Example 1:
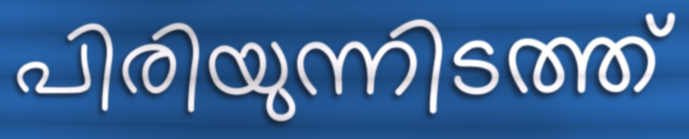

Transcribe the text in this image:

പിരിയുന്നിടത്ത്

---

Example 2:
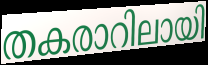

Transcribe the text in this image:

തകരാറിലായി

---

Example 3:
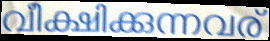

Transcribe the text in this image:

വീക്ഷിക്കുന്നവര്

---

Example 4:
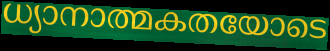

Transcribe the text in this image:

ധ്യാനാത്മകതയോടെ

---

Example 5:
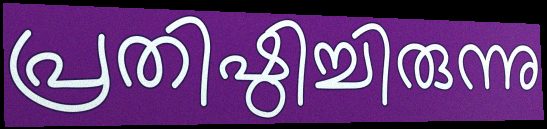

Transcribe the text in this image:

പ്രതിഷ്ഠിച്ചിരുന്നു